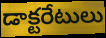
డాక్టరేటులు